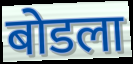
बोडला